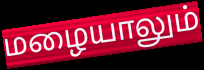
மழையாலும்